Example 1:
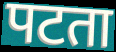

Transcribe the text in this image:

पटता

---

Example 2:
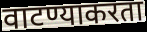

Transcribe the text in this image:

वाटण्याकरता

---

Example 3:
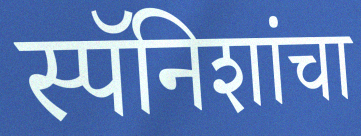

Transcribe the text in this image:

स्पॅनिशांचा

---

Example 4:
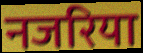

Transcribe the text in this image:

नजरिया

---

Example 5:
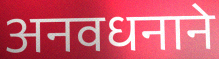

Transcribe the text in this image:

अनवधनाने